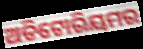
ଅଡିଟୋରିୟମର